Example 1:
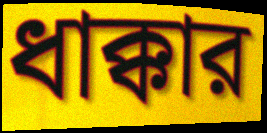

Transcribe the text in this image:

ধাক্কার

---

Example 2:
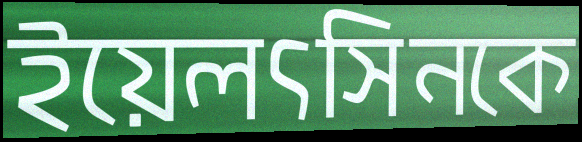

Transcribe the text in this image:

ইয়েলৎসিনকে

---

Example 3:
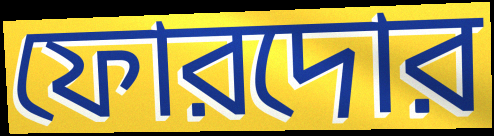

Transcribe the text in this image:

ফোরদোর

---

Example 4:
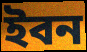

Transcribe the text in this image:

ইবন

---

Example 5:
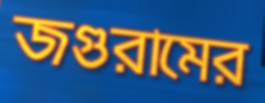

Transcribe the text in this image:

জগুরামের